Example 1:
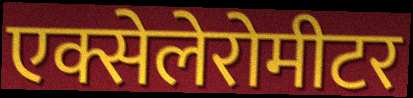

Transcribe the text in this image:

एक्सेलेरोमीटर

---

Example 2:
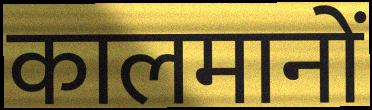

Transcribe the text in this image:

कालमानों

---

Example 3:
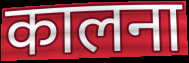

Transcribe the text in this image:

कालना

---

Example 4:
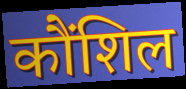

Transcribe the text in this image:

कौंशिल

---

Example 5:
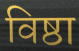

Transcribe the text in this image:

विष्ठा